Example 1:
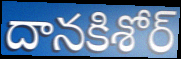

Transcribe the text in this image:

దానకిశోర్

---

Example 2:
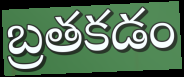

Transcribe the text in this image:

బ్రతకడం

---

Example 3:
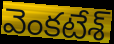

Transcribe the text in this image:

వెంకటేశ్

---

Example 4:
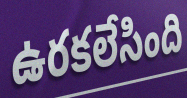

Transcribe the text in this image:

ఉరకలేసింది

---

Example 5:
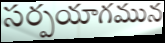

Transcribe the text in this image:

సర్పయాగమున